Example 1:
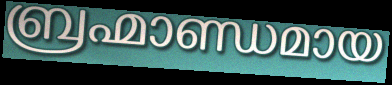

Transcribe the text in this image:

ബ്രഹ്മാണ്ഡമായ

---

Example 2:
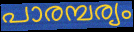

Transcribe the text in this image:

പാരമ്പര്യം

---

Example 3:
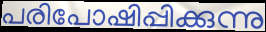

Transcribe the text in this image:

പരിപോഷിപ്പിക്കുന്നു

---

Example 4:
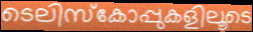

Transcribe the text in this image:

ടെലിസ്കോപ്പുകളിലൂടെ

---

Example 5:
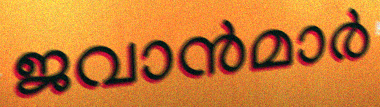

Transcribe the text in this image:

ജവാൻമാർ